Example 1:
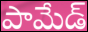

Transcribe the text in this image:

పామేడ్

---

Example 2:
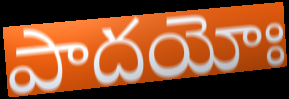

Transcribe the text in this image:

పాదయోః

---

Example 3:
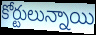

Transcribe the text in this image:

కోర్టులున్నాయి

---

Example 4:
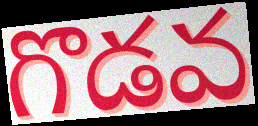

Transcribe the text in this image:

గొడవ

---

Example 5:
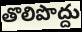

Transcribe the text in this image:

తొలిపొద్దు